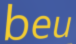
beu